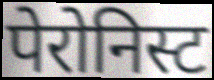
पेरोनिस्ट